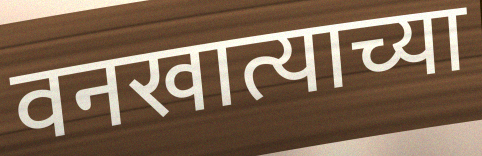
वनखात्याच्या